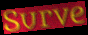
Surve